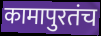
कामापुरतंच